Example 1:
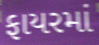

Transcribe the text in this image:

ફાયરમાં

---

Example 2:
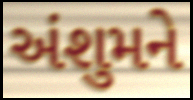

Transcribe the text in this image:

અંશુમને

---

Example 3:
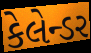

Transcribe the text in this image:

કેલેન્ડર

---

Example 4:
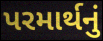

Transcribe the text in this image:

પરમાર્થનું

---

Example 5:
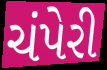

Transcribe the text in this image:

ચંપેરી